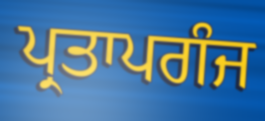
ਪ੍ਰਤਾਪਗੰਜ